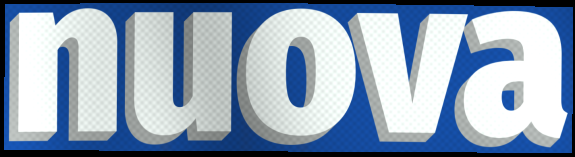
nuova